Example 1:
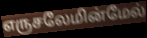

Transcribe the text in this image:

எருசலேமின்மேல்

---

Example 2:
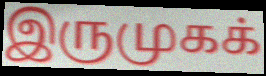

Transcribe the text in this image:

இருமுகக்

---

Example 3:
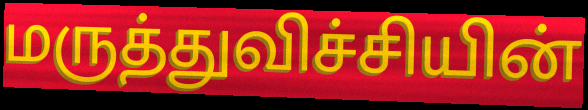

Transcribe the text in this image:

மருத்துவிச்சியின்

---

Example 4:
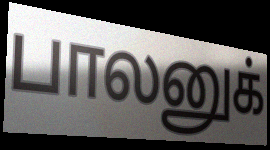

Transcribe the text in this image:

பாலனுக்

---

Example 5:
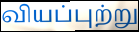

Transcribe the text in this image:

வியப்புற்று